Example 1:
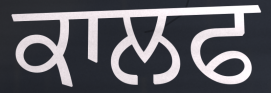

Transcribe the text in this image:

ਕਾਲਫ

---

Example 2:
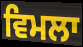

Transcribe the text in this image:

ਵਿਮਲਾ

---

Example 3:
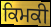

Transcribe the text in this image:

ਕਿਮਕੀ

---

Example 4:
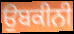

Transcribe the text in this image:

ਉਬਕੀਨੀ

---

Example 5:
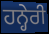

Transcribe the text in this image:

ਹਨ੍ਹੇਰੀ